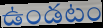
ఉండటం